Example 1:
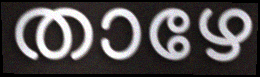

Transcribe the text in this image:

താഴേ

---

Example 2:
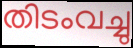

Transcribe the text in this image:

തിടംവച്ചു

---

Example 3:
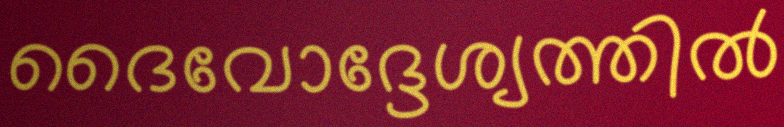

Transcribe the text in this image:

ദൈവോദ്ദേശ്യത്തിൽ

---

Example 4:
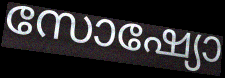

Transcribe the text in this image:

സോഷ്യോ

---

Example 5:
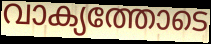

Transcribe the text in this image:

വാക്യത്തോടെ